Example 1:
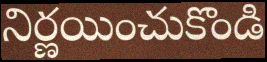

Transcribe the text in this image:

నిర్ణయించుకొండి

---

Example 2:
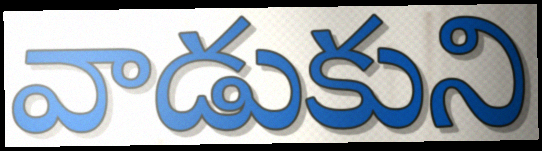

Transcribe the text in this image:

వాడుకుని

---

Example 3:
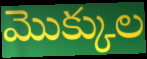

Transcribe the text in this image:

మొక్కుల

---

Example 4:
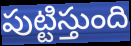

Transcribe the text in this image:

పుట్టిస్తుంది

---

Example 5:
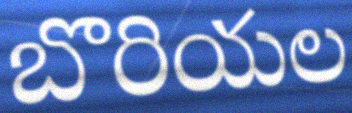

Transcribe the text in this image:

బొరియల